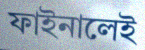
ফাইনালেই